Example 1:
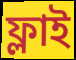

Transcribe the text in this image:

ফ্লাই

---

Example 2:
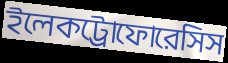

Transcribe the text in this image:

ইলেকট্রোফোরেসিস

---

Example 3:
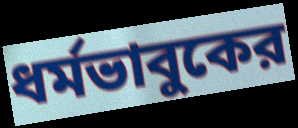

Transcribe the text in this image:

ধর্মভাবুকের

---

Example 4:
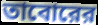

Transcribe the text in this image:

তাবোরের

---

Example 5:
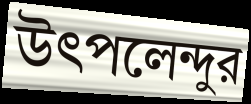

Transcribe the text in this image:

উৎপলেন্দুর